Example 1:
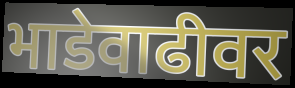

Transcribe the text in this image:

भाडेवाढीवर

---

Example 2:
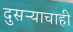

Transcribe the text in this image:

दुसऱ्याचाही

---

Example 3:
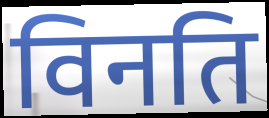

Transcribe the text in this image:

विनति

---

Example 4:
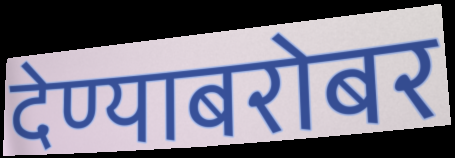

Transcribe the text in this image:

देण्याबरोबर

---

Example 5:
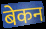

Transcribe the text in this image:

बेकन